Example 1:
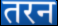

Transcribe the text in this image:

तरन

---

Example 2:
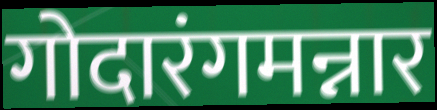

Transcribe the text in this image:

गोदारंगमन्नार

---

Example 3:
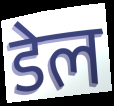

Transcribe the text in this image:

डेल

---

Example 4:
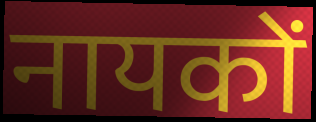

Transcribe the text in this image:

नायकों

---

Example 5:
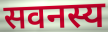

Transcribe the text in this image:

सवनस्य